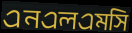
এনএলএমসি